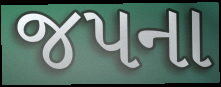
જપના